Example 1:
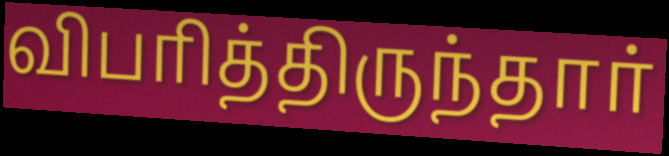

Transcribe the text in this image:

விபரித்திருந்தார்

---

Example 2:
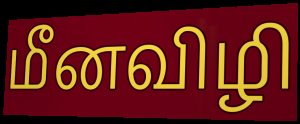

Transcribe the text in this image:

மீனவிழி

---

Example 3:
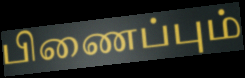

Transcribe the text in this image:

பிணைப்பும்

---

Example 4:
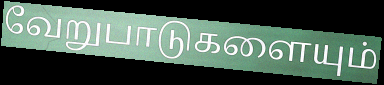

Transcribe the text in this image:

வேறுபாடுகளையும்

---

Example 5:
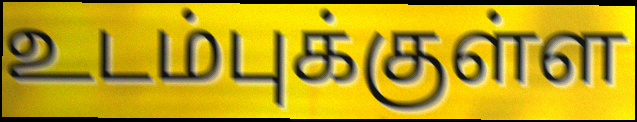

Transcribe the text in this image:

உடம்புக்குள்ள